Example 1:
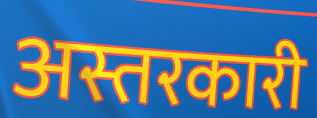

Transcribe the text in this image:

अस्तरकारी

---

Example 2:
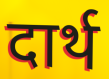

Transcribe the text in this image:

दार्थ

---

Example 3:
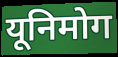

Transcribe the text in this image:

यूनिमोग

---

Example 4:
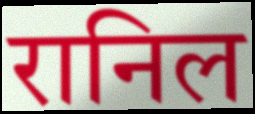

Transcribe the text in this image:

रानिल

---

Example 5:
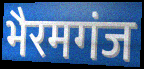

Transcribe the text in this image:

भैरमगंज